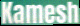
Kamesh